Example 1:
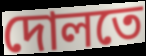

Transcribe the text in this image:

দোলতে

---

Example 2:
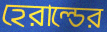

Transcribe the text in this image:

হেরাল্ডের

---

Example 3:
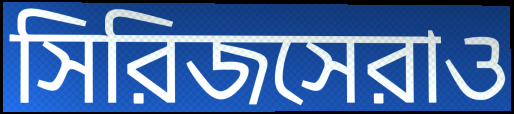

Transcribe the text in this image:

সিরিজসেরাও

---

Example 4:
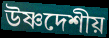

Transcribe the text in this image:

উষ্ণদেশীয়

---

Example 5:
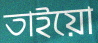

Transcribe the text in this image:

তাইয়ো